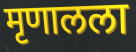
मृणालला